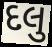
દલુ